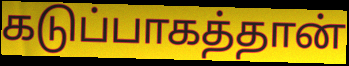
கடுப்பாகத்தான்